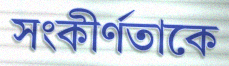
সংকীর্ণতাকে